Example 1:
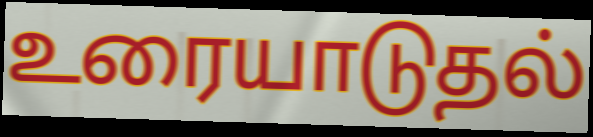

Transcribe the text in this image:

உரையாடுதல்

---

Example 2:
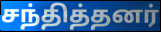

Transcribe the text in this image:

சந்தித்தனர்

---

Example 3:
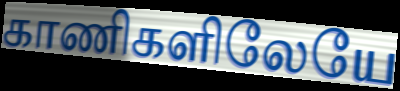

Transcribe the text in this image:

காணிகளிலேயே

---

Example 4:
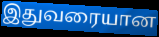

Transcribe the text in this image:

இதுவரையான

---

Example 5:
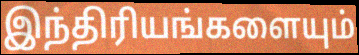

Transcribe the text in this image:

இந்திரியங்களையும்